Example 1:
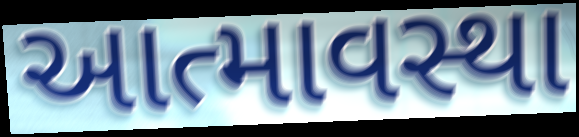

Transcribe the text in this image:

આત્માવસ્થા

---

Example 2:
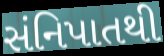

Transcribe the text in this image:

સંનિપાતથી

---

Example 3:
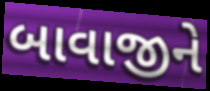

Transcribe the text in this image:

બાવાજીને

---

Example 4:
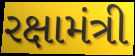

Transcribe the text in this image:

રક્ષામંત્રી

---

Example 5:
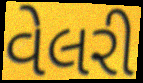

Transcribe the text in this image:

વેલરી